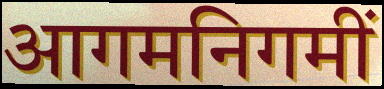
आगमनिगमीं